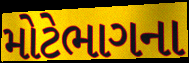
મોટેભાગના